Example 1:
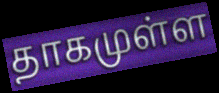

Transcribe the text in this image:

தாகமுள்ள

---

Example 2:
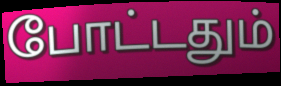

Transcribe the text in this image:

போட்டதும்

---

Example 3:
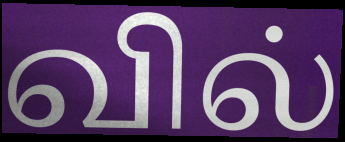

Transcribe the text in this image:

வில்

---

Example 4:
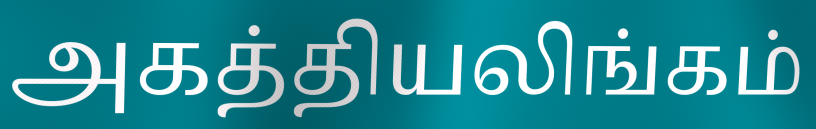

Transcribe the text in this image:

அகத்தியலிங்கம்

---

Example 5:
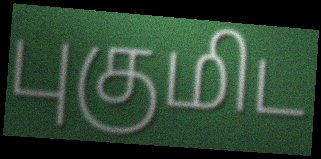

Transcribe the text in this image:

புகுமிட